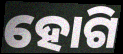
ହୋଗି